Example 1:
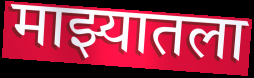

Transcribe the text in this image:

माझ्यातला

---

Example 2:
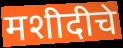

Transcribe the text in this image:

मशीदीचे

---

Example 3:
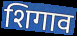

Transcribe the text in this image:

शिगाव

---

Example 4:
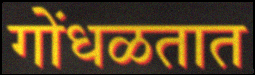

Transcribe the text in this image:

गोंधळतात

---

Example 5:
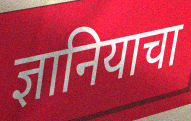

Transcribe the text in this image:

ज्ञानियाचा